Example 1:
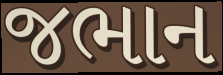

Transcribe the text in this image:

જભાન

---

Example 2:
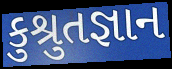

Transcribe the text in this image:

કુશ્રુતજ્ઞાન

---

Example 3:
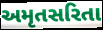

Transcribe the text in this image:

અમૃતસરિતા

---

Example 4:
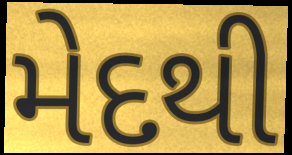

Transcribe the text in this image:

મેદથી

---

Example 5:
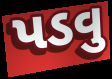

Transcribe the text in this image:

પડવુ